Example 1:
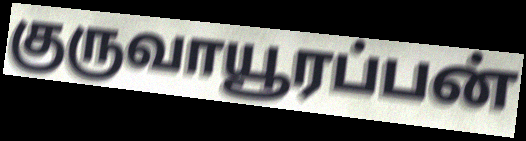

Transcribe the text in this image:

குருவாயூரப்பன்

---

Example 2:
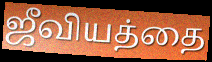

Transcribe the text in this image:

ஜீவியத்தை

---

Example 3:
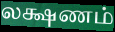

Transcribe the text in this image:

லக்ஷணம்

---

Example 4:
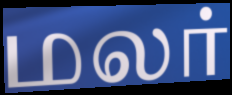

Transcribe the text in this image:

மலர்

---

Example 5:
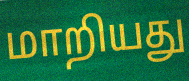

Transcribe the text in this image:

மாறியது